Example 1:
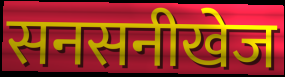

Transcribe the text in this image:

सनसनीखेज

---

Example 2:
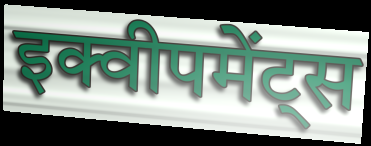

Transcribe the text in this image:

इक्वीपमेंट्स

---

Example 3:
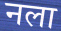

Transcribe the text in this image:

नला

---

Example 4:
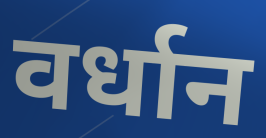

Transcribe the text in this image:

वर्धान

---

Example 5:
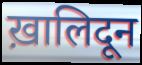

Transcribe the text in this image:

ख़ालिदून